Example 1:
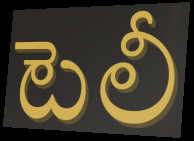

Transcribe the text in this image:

టెలీ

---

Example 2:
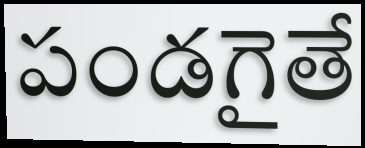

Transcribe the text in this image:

పండగైతే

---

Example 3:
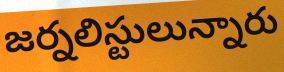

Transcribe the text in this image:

జర్నలిస్టులున్నారు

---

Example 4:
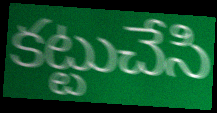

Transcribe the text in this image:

కట్టుచేసి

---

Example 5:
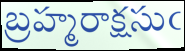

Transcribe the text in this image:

బ్రహ్మరాక్షసుఁ